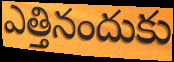
ఎత్తినందుకు